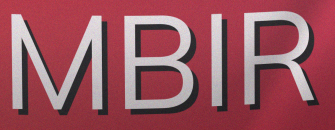
MBIR